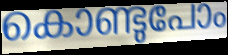
കൊണ്ടുപോം